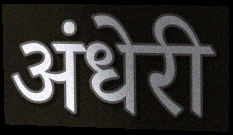
अंधेरी